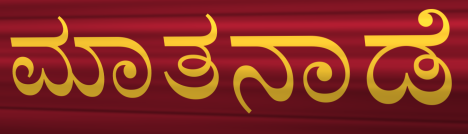
ಮಾತನಾಡೆ